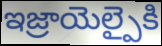
ఇజ్రాయెల్పైకి